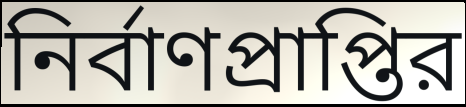
নির্বাণপ্রাপ্তির